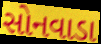
સોનવાડા